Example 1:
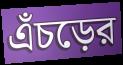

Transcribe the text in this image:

এঁচড়ের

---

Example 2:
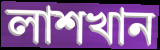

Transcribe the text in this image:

লাশখান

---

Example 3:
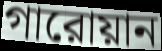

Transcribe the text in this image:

গারোয়ান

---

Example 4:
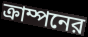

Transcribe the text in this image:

ক্রাম্পনের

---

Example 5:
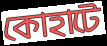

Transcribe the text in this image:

কোহাটে